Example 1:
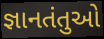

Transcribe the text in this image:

જ્ઞાનતંતુઓ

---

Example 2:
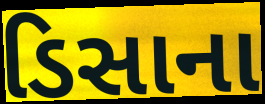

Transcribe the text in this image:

ડિસાના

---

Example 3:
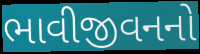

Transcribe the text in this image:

ભાવીજીવનનો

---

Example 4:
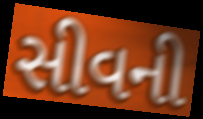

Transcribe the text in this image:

સીવની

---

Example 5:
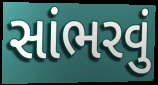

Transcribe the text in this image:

સાંભરવું